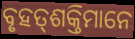
ବୃହତ୍‌ଶକ୍ତିମାନେ